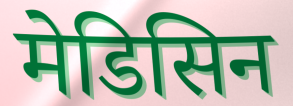
मेडिसिन